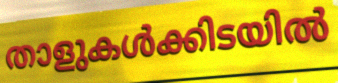
താളുകൾക്കിടയിൽ